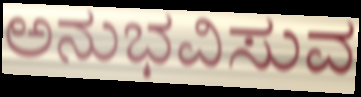
ಅನುಭವಿಸುವ